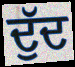
ਦੁੱਦ